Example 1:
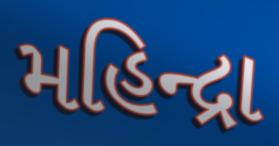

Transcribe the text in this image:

મહિન્દ્રા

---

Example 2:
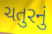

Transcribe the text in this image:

ચતુરનું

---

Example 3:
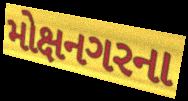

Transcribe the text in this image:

મોક્ષનગરના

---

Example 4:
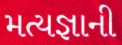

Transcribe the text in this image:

મત્યજ્ઞાની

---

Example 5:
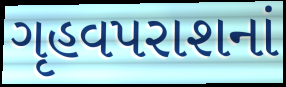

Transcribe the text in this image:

ગૃહવપરાશનાં